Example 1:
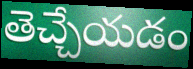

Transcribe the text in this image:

తెచ్చేయడం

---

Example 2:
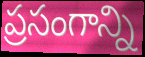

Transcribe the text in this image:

ప్రసంగాన్ని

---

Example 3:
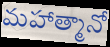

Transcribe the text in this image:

మహాత్మానో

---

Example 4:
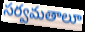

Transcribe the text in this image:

సర్వమతాలూ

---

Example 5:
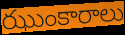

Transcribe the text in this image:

ఝుంకారాలు